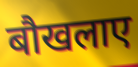
बौखलाए